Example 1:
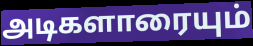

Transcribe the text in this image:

அடிகளாரையும்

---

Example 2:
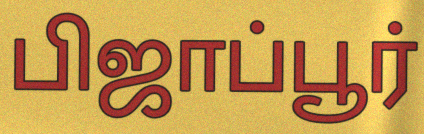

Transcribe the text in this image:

பிஜாப்பூர்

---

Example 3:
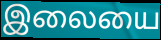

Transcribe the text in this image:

இலையை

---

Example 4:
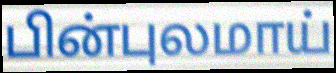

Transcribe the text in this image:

பின்புலமாய்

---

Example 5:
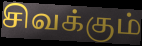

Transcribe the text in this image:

சிவக்கும்